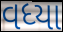
વધ્યા